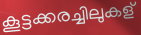
കൂട്ടക്കരച്ചിലുകള്